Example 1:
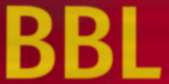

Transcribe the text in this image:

BBL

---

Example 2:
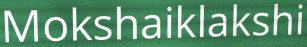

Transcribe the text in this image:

Mokshaiklakshi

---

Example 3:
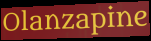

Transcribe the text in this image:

Olanzapine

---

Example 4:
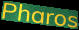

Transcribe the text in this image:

Pharos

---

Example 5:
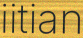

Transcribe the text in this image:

iitian